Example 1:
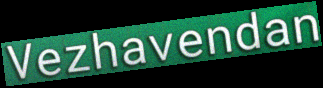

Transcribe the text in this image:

Vezhavendan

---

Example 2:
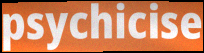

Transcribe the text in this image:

psychicise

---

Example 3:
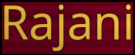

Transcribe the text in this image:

Rajani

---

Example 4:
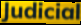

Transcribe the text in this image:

Judicial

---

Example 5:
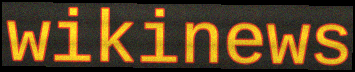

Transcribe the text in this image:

wikinews